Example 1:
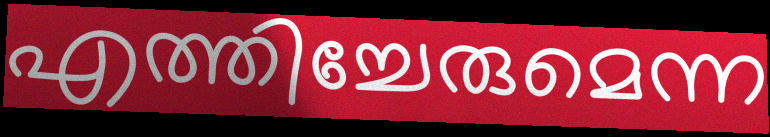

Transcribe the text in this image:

എത്തിച്ചേരുമെന്ന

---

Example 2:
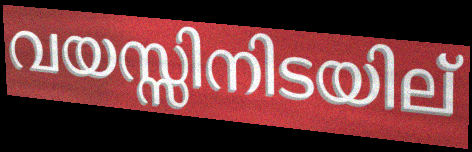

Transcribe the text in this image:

വയസ്സിനിടയില്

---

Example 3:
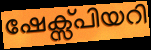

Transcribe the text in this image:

ഷേക്സ്പിയറി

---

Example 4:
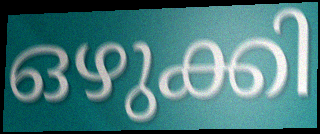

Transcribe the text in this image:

ഒഴുക്കി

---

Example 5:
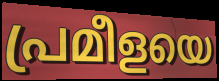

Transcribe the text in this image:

പ്രമീളയെ